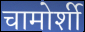
चामोर्शी